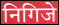
निगिजे